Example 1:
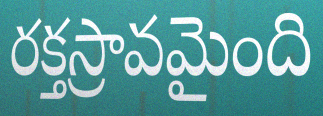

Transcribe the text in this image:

రక్తస్రావమైంది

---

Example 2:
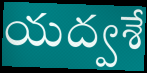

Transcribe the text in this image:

యద్వశే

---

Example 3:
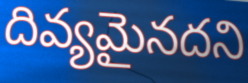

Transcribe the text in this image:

దివ్యమైనదని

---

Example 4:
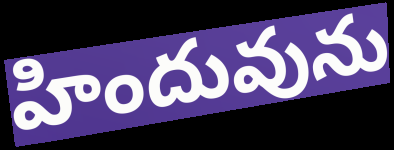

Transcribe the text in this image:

హిందువును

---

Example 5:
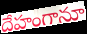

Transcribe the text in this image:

దేహంగానూ